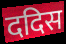
ददिस